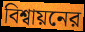
বিশ্বায়নের